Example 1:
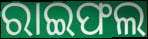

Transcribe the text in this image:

ରାଇଫଲ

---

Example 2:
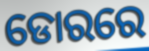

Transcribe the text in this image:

ଡୋରରେ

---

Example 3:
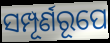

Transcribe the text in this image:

ସମ୍ପୂର୍ଣରୂପେ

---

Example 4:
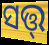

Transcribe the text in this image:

ସତ୍ତ୍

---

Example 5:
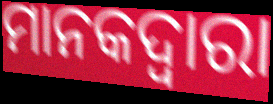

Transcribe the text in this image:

ମାନକଦ୍ୱାରା